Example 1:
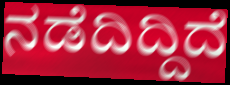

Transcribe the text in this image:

ನಡೆದಿದ್ದಿದೆ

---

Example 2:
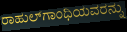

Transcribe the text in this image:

ರಾಹುಲ್‌ಗಾಂಧಿಯವರನ್ನು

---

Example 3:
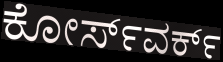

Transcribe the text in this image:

ಕೋರ್ಸ್‌ವರ್ಕ್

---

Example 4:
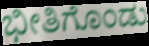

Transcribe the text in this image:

ಭೀತಿಗೊಂಡು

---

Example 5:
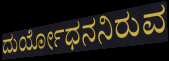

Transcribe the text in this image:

ದುರ್ಯೋಧನನಿರುವ